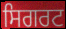
ਸਿਗਰਟ